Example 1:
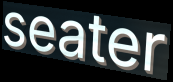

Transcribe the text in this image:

seater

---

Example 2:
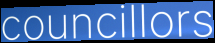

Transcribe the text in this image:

councillors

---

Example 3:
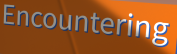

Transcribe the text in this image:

Encountering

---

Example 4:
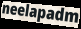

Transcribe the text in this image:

neelapadm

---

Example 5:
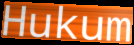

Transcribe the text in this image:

Hukum